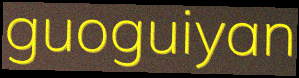
guoguiyan